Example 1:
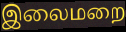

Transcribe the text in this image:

இலைமறை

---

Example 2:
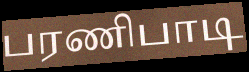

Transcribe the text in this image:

பரணிபாடி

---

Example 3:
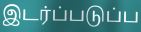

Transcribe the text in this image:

இடர்ப்படுப்ப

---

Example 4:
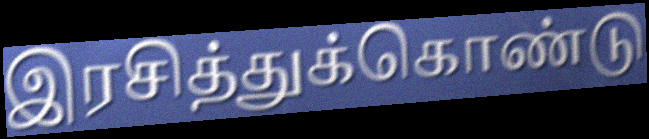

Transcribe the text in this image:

இரசித்துக்கொண்டு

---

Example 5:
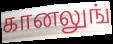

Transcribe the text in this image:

கானலுங்